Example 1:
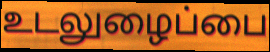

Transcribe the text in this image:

உடலுழைப்பை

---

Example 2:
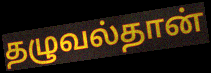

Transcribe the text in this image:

தழுவல்தான்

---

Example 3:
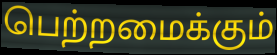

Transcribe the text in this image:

பெற்றமைக்கும்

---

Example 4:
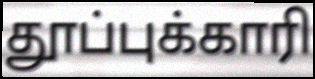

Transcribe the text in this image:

தூப்புக்காரி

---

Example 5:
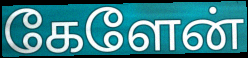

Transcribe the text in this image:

கேளேன்